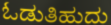
ಓಡುತಿಹುದು